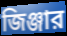
জিঞ্জার